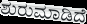
ಶುರುಮಾಡಿದೆ